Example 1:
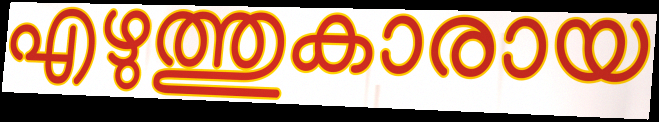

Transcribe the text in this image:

എഴുത്തുകാരായ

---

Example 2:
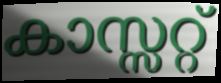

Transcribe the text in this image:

കാസ്സറ്റ്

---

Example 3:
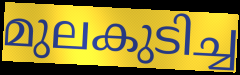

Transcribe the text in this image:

മുലകുടിച്ച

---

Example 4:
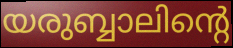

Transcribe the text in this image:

യരുബ്ബാലിന്റെ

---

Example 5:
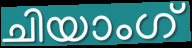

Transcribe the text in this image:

ചിയാംഗ്